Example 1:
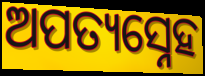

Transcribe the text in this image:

ଅପତ୍ୟସ୍ନେହ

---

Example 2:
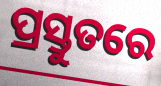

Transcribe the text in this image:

ପ୍ରସ୍ତୁତରେ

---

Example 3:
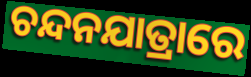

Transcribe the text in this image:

ଚନ୍ଦନଯାତ୍ରାରେ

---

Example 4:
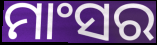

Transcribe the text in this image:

ମାଂସର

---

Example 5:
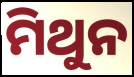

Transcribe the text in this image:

ମିଥୁନ